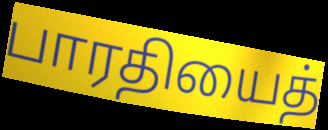
பாரதியைத்